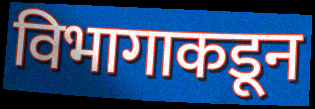
विभागाकडून